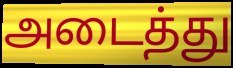
அடைத்து